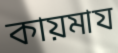
কায়মায